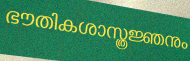
ഭൗതികശാസ്ത്രജ്ഞനും